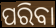
ପରିବା